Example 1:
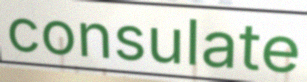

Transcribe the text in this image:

consulate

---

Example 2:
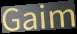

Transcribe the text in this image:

Gaim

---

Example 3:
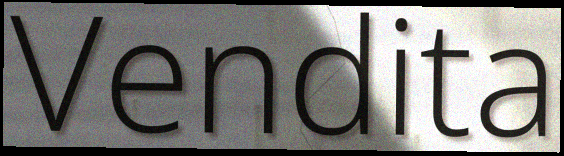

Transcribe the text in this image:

Vendita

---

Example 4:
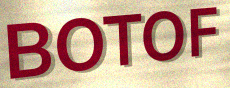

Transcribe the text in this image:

BOTOF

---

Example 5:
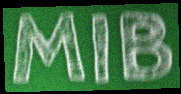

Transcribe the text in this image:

MIB